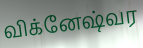
விக்னேஷ்வர